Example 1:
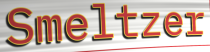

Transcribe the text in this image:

Smeltzer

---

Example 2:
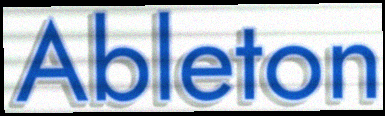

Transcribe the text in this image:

Ableton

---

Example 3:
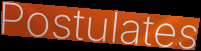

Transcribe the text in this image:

Postulates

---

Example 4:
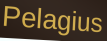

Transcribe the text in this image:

Pelagius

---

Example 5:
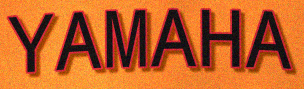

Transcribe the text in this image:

YAMAHA